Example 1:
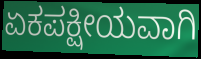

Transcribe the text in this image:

ಏಕಪಕ್ಷೀಯವಾಗಿ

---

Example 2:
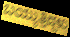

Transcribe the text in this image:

ಬಯ್ಯುತ್ತಿದ್ದಳು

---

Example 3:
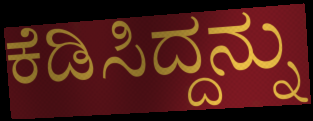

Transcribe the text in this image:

ಕೆಡಿಸಿದ್ದನ್ನು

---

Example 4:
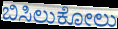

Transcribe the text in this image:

ಬಿಸಿಲುಕೋಲು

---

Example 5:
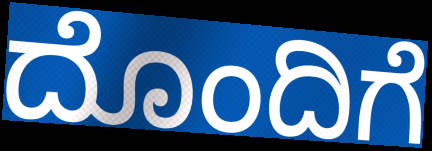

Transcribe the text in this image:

ದೊಂದಿಗೆ